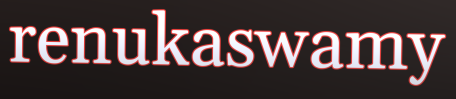
renukaswamy